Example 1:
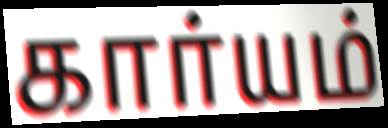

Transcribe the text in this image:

கார்யம்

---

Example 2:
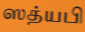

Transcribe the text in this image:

ஸத்யபி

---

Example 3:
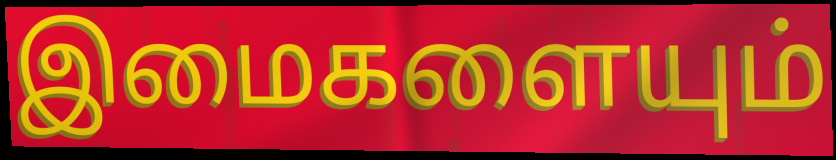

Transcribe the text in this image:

இமைகளையும்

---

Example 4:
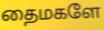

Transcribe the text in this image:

தைமகளே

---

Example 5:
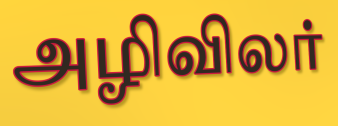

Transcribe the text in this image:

அழிவிலர்